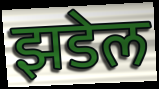
झडेल